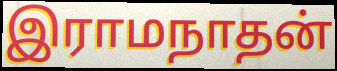
இராமநாதன்